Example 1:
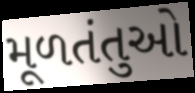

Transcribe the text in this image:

મૂળતંતુઓ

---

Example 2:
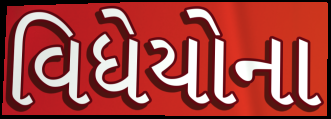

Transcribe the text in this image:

વિધેયોના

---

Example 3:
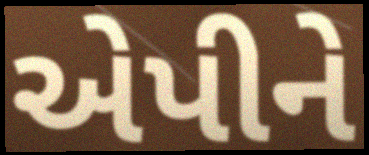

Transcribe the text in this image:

એપીને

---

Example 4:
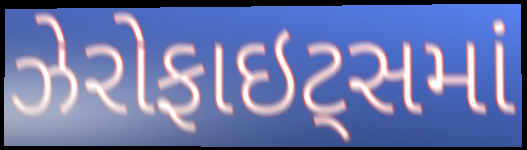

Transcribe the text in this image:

ઝેરોફાઇટ્સમાં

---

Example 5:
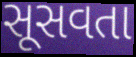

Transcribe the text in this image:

સૂસવતા